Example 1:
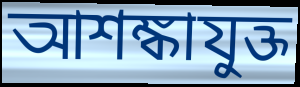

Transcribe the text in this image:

আশঙ্কাযুক্ত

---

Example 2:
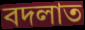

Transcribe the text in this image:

বদলাত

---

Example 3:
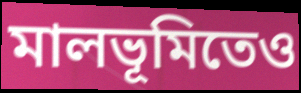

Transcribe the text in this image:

মালভূমিতেও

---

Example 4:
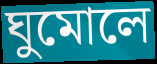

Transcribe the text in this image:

ঘুমোলে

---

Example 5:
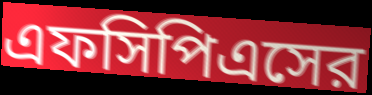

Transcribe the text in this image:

এফসিপিএসের